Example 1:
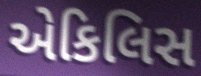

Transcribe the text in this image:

એકિલિસ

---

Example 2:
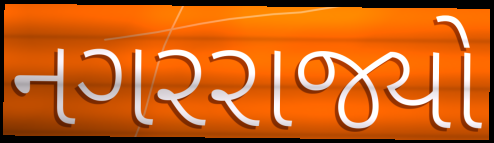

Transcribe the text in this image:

નગરરાજ્યો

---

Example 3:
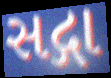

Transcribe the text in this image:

સદ્ગા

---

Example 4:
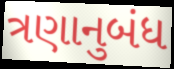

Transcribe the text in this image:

ત્રણાનુબંધ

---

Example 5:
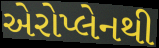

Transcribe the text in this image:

એરોપ્લેનથી